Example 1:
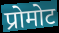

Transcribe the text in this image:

प्रोमोट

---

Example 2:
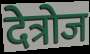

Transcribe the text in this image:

देत्रोज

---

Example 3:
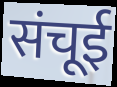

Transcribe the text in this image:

संचूई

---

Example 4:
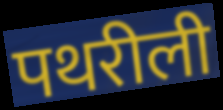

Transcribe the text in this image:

पथरीली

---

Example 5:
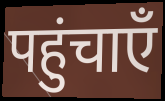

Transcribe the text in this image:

पहुंचाएँ